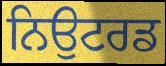
ਨਿਉਟਰਡ